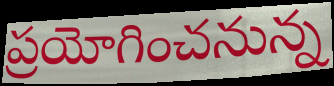
ప్రయోగించనున్న